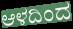
ಆಳದಿಂದ